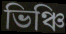
ভিঞ্চি